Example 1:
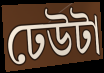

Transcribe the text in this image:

ঢেউটা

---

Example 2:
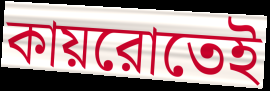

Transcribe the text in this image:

কায়রোতেই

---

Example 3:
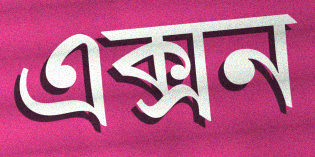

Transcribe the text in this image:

এক্সন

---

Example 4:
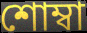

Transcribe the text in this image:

শোম্বা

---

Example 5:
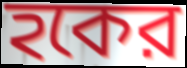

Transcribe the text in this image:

হকের